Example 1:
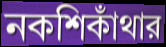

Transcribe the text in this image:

নকশিকাঁথার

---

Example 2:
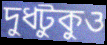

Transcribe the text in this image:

দুধটুকুও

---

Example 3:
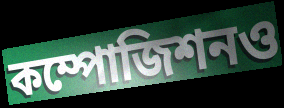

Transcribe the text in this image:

কম্পোজিশনও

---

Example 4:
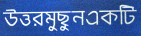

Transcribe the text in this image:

উত্তরমুছুনএকটি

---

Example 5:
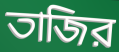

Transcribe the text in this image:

তাজির